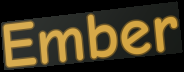
Ember